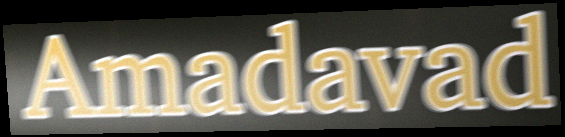
Amadavad